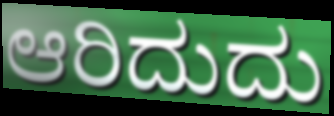
ಆರಿದುದು